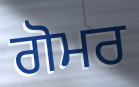
ਗੋਮਰ